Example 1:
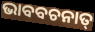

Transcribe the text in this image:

ଭାବବଚନାତ୍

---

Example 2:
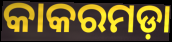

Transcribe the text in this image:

କାକରମଡ଼ା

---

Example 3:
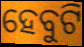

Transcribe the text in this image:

ହେବୁଟି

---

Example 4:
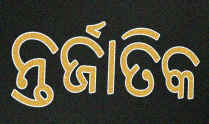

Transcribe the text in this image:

ନ୍ତର୍ଜାତିକ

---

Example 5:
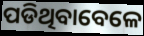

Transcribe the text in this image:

ପଡିଥିବାବେଳେ